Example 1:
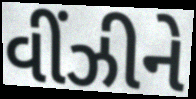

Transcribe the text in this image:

વીંઝીને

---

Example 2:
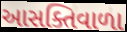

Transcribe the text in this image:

આસક્તિવાળા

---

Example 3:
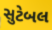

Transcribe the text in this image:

સુટેબલ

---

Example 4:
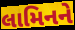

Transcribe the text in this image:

લામિનને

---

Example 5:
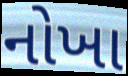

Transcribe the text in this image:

નોખા